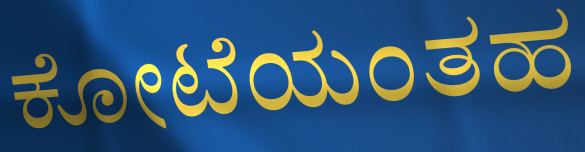
ಕೋಟೆಯಂತಹ